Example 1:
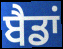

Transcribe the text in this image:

ਬੈਡਾਂ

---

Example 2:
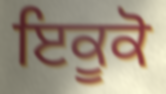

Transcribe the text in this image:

ਇਕੂਕੋ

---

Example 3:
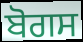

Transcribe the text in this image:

ਬੋਗਸ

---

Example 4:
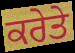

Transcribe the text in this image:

ਕਰੇਤੇ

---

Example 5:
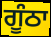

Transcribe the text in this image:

ਗੂੰਠਾ